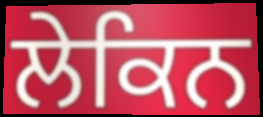
ਲੇਕਿਨ